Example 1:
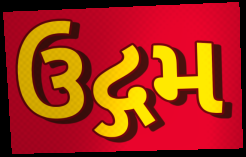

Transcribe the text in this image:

ઉદ્ગમ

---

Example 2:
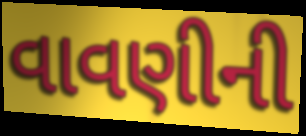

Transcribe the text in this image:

વાવણીની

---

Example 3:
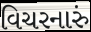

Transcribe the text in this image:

વિચરનારું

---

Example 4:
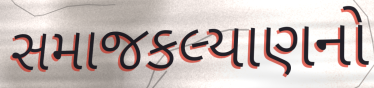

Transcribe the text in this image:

સમાજકલ્યાણનો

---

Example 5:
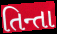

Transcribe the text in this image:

તિન્તા